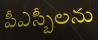
పీఎస్బీలను